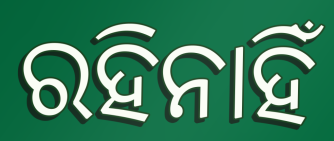
ରହିନାହିଁ